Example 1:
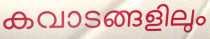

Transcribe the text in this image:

കവാടങ്ങളിലും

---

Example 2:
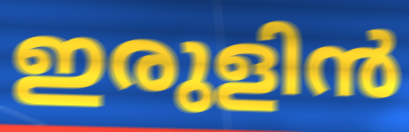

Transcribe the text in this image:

ഇരുളിൻ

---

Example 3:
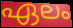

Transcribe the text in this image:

ഏലം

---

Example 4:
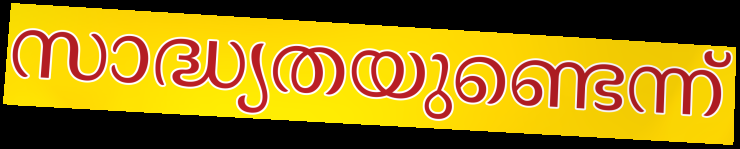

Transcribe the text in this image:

സാദ്ധ്യതയുണ്ടെന്ന്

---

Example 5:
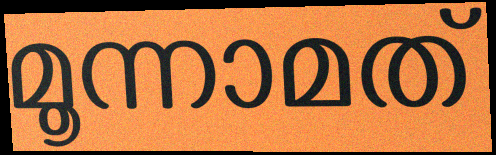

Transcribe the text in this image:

മൂന്നാമത്